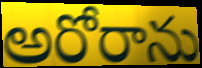
అరోరాను